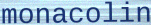
monacolin